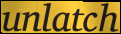
unlatch